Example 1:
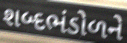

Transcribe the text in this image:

શબ્દભંડોળને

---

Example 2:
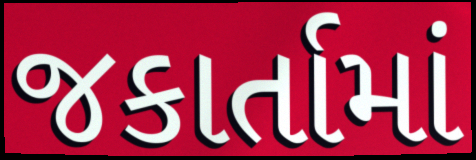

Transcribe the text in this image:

જકાર્તામાં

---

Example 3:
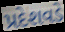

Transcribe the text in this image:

પ્રદેશવડે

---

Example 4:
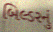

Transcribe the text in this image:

બિલ્ડરનું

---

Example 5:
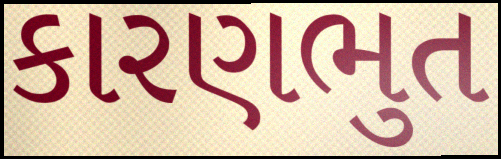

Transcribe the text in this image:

કારણભુત